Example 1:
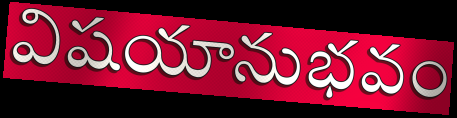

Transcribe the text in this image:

విషయానుభవం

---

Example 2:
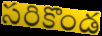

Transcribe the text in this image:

సరికొండ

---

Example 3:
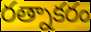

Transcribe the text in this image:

రత్నాకరం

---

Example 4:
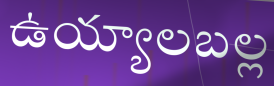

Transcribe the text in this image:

ఉయ్యాలబల్ల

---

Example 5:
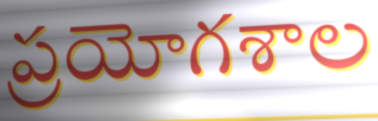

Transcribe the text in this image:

ప్రయోగశాల